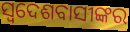
ସ୍ୱଦେଶବାସୀଙ୍କର